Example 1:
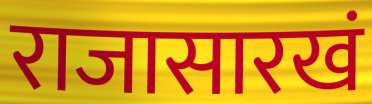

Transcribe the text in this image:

राजासारखं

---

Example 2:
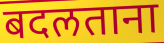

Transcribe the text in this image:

बदलताना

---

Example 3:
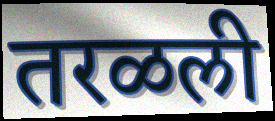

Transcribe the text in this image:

तरळली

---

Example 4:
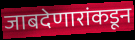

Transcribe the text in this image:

जाबदेणारांकडून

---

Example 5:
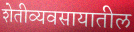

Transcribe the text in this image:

शेतीव्यवसायातील